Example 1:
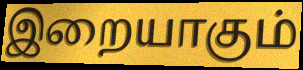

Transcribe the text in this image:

இறையாகும்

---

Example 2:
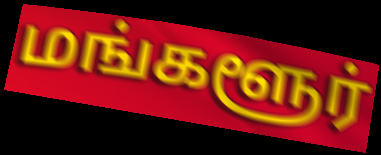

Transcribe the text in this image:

மங்களூர்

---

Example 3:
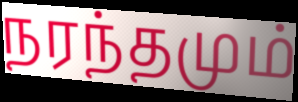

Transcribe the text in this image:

நரந்தமும்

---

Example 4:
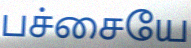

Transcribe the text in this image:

பச்சையே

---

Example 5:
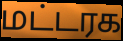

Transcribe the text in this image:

மட்டரக